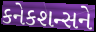
કનેકશન્સને